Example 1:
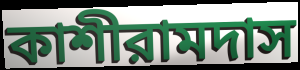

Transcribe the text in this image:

কাশীরামদাস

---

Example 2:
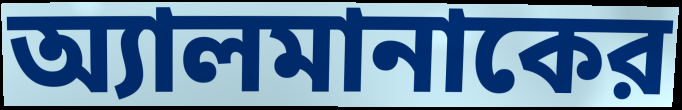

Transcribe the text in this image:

অ্যালমানাকের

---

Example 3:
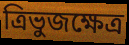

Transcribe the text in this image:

ত্রিভুজক্ষেত্র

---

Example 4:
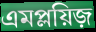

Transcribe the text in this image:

এমপ্লয়িজ়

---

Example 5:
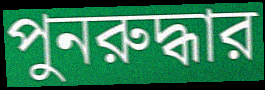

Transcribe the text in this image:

পুনরুদ্ধার